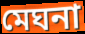
মেঘনা